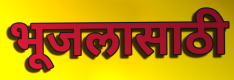
भूजलासाठी